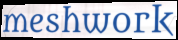
meshwork